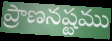
ప్రాణనష్టము